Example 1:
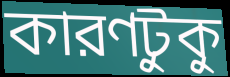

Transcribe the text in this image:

কারণটুকু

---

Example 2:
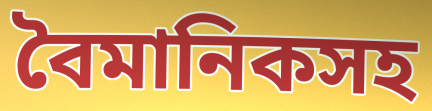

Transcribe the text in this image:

বৈমানিকসহ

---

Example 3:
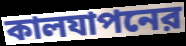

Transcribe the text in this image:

কালযাপনের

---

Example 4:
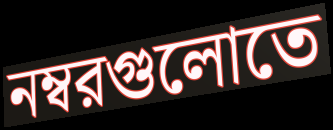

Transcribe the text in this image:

নম্বরগুলোতে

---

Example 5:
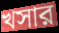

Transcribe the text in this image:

খসার